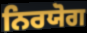
ਨਿਰਯੋਗ